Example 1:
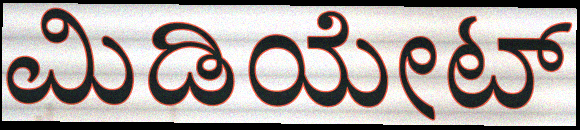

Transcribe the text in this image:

ಮಿಡಿಯೇಟ್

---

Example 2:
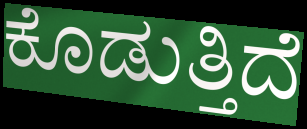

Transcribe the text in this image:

ಕೊಡುತ್ತಿದೆ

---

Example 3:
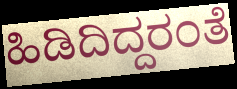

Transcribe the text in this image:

ಹಿಡಿದಿದ್ದರಂತೆ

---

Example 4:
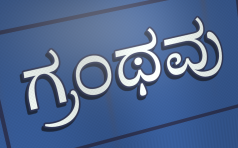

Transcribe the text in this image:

ಗ್ರಂಥವು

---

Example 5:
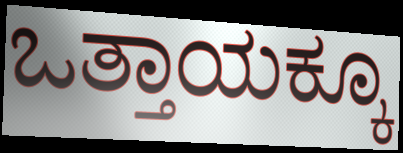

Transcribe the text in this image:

ಒತ್ತಾಯಕ್ಕೂ